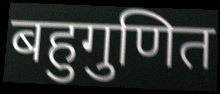
बहुगुणित